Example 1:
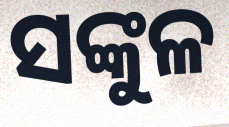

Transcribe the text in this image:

ସଙ୍କୁଳ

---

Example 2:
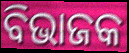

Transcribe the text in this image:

ବିଭାଜକ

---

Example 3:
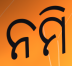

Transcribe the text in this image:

ନମି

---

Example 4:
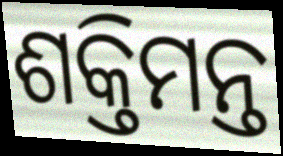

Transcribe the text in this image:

ଶକ୍ତିମନ୍ତ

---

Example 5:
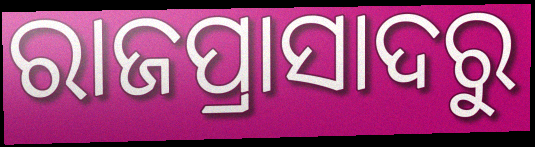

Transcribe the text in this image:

ରାଜପ୍ରାସାଦରୁ